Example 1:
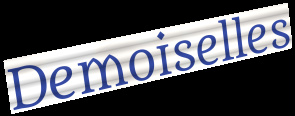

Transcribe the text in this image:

Demoiselles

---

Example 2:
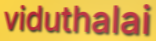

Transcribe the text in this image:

viduthalai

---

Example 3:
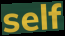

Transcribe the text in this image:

self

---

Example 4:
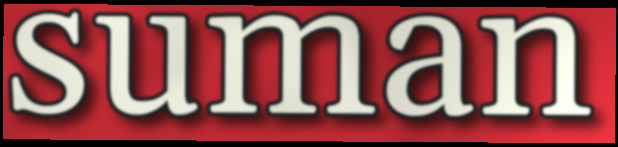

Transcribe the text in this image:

suman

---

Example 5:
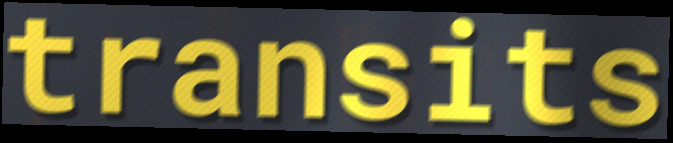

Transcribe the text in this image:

transits